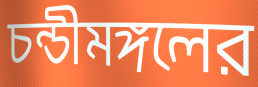
চন্ডীমঙ্গলের